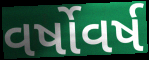
વર્ષોવર્ષ